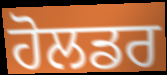
ਹੋਲਡਰ